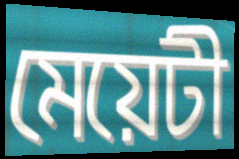
মেয়েটী